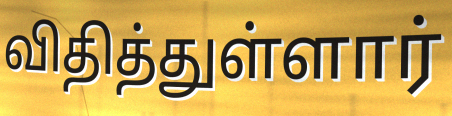
விதித்துள்ளார்